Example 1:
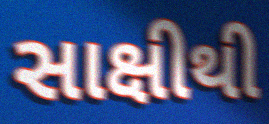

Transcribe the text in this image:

સાક્ષીથી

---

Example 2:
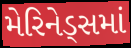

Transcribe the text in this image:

મેરિનેડ્સમાં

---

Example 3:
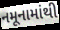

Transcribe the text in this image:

નમૂનામાંથી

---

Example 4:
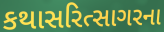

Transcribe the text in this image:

કથાસરિત્સાગરના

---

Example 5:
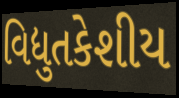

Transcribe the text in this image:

વિદ્યુતકેશીય